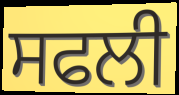
ਸਫਲੀ